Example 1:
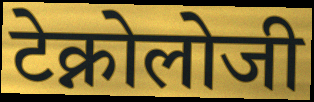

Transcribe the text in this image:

टेक्नोलोजी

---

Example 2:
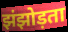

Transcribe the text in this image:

झंझोड़ता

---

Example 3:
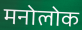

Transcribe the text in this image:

मनोलोक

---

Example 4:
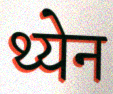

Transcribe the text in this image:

थ्येन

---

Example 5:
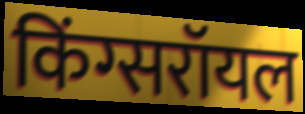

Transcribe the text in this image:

किंग्सरॉयल